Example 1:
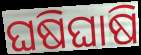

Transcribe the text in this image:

ଘଷିଘାଷି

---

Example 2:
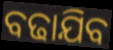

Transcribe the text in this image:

ବଢାଯିବ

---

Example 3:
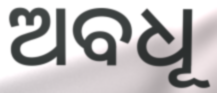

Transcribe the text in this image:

ଅବଧୂ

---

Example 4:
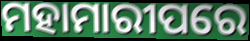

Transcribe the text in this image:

ମହାମାରୀପରେ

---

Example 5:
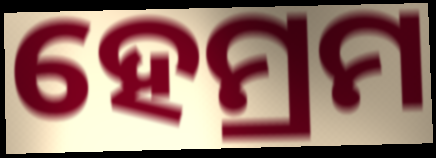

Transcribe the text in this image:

ହେମ୍ରମ